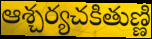
ఆశ్చర్యచకితుణ్ణి